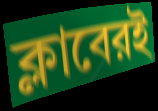
ক্লাবেরই